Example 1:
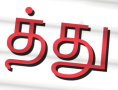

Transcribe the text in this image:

த்து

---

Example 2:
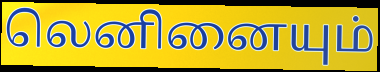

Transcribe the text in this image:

லெனினையும்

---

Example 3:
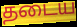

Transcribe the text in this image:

தடைய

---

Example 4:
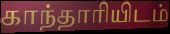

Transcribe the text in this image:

காந்தாரியிடம்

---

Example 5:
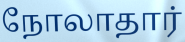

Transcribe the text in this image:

நோலாதார்